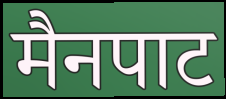
मैनपाट